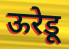
ऊरेडू